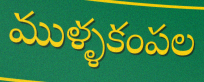
ముళ్ళకంపల